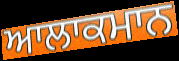
ਆਲਾਕਮਾਨ